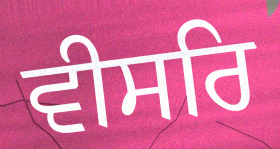
ਵੀਸਰਿ